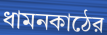
ধামনকাঠের